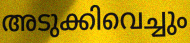
അടുക്കിവെച്ചും